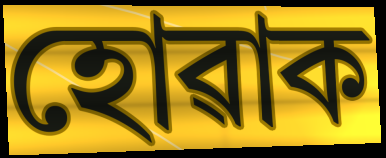
হোৱাক